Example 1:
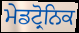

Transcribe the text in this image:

ਮੇਡਟ੍ਰੋਨਿਕ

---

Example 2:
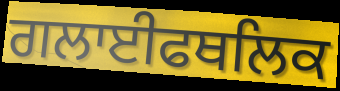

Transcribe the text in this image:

ਗਲਾਈਫਥਲਿਕ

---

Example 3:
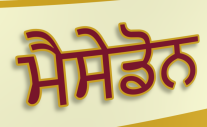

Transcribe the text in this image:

ਮੈਸੇਡੋਨ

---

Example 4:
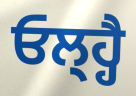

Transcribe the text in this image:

ਓਲ੍ਹ੍ਹੈ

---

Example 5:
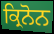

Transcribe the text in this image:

ਕ੍ਰਿਨੋਨ